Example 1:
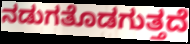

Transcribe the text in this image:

ನಡುಗತೊಡಗುತ್ತದೆ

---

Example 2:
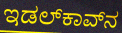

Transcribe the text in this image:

ಇಡಲ್‌ಕಾವ್‌ನ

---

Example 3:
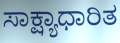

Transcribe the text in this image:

ಸಾಕ್ಷ್ಯಾಧಾರಿತ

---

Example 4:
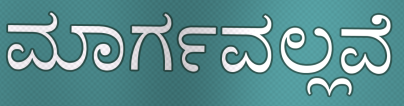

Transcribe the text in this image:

ಮಾರ್ಗವಲ್ಲವೆ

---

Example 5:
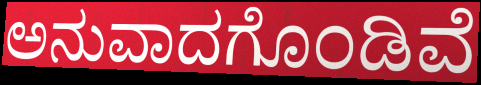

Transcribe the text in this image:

ಅನುವಾದಗೊಂಡಿವೆ